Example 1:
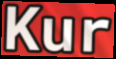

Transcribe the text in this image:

Kur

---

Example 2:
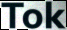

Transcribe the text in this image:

Tok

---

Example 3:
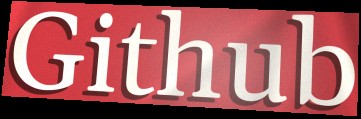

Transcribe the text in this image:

Github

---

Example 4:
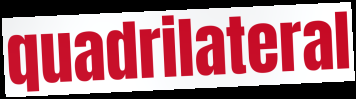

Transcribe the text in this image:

quadrilateral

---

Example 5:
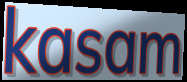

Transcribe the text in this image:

kasam